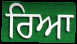
ਰਿਆ